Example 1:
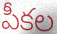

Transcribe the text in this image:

పీకల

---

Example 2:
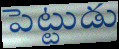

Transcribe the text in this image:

పెట్టుడు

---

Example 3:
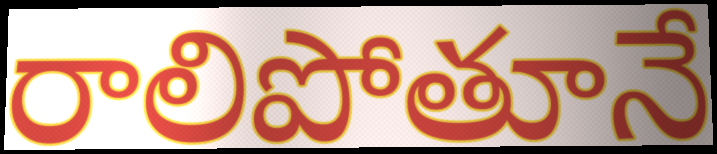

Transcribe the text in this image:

రాలిపోతూనే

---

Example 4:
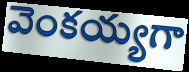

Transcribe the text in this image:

వెంకయ్యగా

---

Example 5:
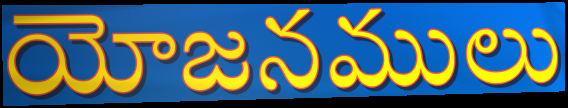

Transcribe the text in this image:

యోజనములు